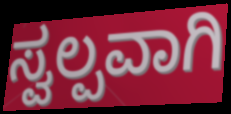
ಸ್ವಲ್ಪವಾಗಿ